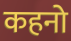
कहनो